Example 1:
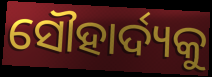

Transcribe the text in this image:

ସୌହାର୍ଦ୍ୟକୁ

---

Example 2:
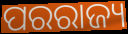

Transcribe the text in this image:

ପରରାଜ୍ୟ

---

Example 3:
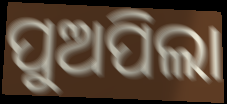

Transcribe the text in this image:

ପୁଅପିଲା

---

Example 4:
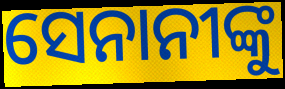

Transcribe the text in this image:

ସେନାନୀଙ୍କୁ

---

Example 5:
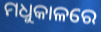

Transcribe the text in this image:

ମଧୁକାଳରେ